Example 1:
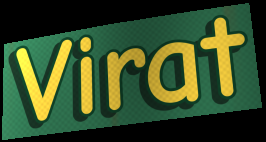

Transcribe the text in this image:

Virat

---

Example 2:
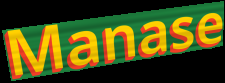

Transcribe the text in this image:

Manase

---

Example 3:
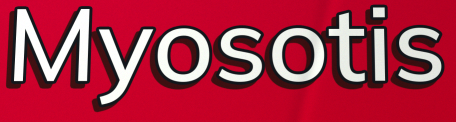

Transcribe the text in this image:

Myosotis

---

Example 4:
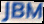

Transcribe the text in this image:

JBM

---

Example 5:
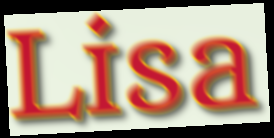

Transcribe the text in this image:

Lisa